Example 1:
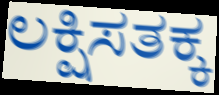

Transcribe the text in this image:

ಲಕ್ಷಿಸತಕ್ಕ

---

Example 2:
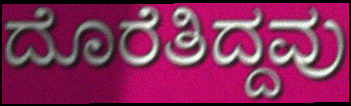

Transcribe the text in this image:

ದೊರೆತಿದ್ದವು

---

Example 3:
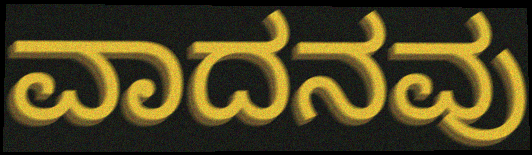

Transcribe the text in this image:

ವಾದನವು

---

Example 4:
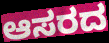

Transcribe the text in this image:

ಆಸರದ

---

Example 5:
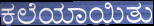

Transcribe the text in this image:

ಕಲೆಯಾಯಿತು